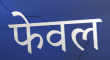
फेवल